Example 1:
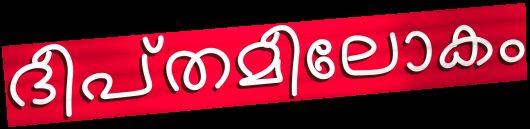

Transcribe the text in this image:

ദീപ്‌തമീലോകം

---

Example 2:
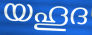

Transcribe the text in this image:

യഹൂദ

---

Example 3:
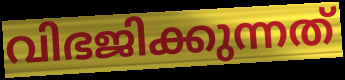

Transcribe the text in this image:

വിഭജിക്കുന്നത്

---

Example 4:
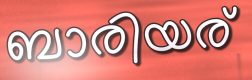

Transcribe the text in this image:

ബാരിയര്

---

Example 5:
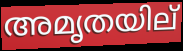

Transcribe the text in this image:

അമൃതയില്